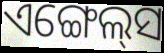
ଏଙ୍ଗେଲ୍‌ସ